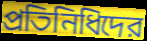
প্রতিনিধিদের